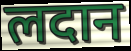
लदान